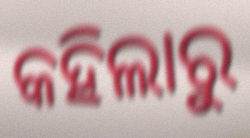
କହିଲାରୁ